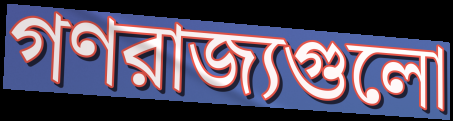
গণরাজ্যগুলো